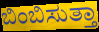
ಬಿಂಬಿಸುತ್ತಾ